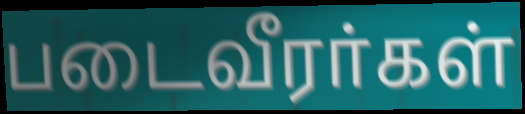
படைவீரர்கள்